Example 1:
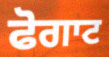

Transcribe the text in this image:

ਫੋਗਾਟ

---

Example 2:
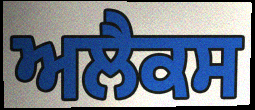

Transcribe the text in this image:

ਅਲੈਕਸ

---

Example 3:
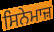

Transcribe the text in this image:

ਸਿਨੇਮਾਜ਼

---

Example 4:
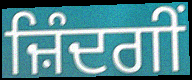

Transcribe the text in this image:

ਜ਼ਿੰਦਗੀਂ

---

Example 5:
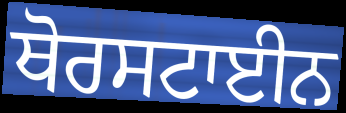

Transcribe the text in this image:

ਥੋਰਸਟਾਈਨ